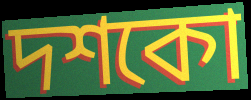
দশকো